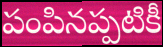
పంపినప్పటికీ